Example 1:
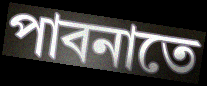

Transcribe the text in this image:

পাবনাতে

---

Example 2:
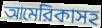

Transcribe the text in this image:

আমেরিকাসহ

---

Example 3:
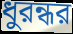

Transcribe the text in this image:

ধুরন্ধর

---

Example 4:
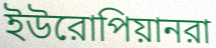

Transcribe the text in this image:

ইউরোপিয়ানরা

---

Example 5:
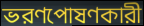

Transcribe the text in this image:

ভরণপোষণকারী